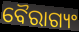
ବୈରାଗ୍ୟଂ